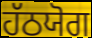
ਹੱਠਯੋਗ